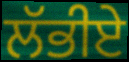
ਲੱਭੀਏ